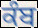
ਕੰਬ